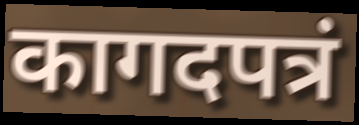
कागदपत्रं